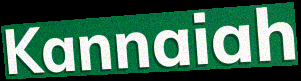
Kannaiah